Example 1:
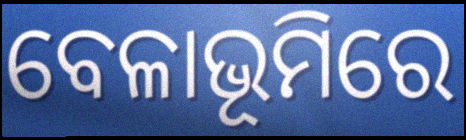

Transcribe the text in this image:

ବେଳାଭୂମିରେ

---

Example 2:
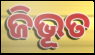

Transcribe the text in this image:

ଜିଭୂତ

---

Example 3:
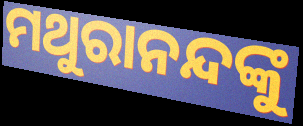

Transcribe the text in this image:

ମଥୁରାନନ୍ଦଙ୍କୁ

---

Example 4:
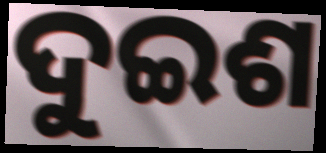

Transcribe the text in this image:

ଦୁଇଶ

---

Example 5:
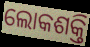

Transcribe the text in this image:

ଲୋକଶକ୍ତି